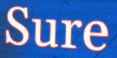
Sure